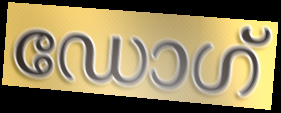
ഡോഗ്